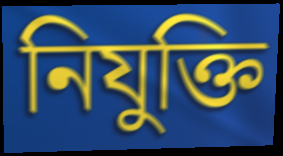
নিযুক্তি